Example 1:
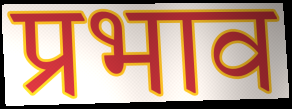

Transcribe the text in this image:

प्रभाव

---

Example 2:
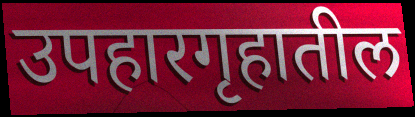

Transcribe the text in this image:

उपहारगृहातील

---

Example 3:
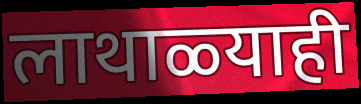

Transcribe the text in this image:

लाथाळ्याही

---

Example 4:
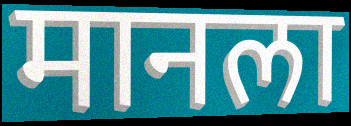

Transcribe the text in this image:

मानला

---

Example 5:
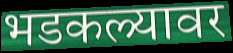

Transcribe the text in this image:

भडकल्यावर